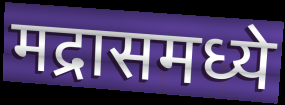
मद्रासमध्ये